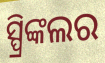
ସ୍ପ୍ରିଙ୍କଲର